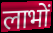
लाभों